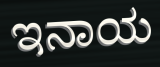
ಇನಾಯ